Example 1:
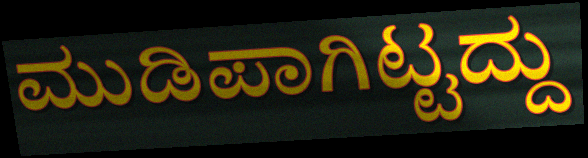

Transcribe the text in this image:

ಮುಡಿಪಾಗಿಟ್ಟದ್ದು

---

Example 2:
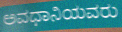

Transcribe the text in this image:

ಅವಧಾನಿಯವರು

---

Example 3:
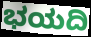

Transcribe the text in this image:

ಭಯದಿ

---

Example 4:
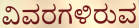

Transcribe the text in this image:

ವಿವರಗಳಿರುವ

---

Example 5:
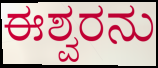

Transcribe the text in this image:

ಈಶ್ವರನು